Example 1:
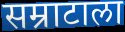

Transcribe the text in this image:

सम्राटाला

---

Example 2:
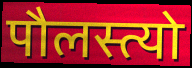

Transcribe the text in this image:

पौलस्त्यो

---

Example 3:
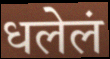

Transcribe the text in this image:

धलेलं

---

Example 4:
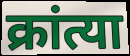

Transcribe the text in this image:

क्रांत्या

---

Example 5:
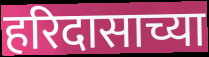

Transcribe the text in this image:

हरिदासाच्या